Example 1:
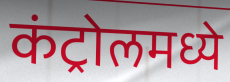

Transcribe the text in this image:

कंट्रोलमध्ये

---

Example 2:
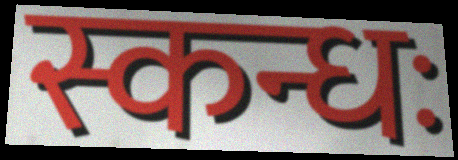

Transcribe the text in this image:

स्कन्धः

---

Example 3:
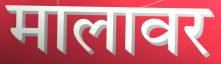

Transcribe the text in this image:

मालावर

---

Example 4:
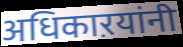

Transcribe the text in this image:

अधिकाऱयांनी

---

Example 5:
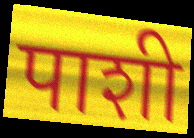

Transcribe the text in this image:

पाशी